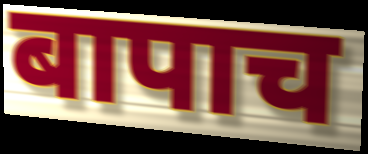
बापाच